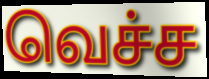
வெச்ச